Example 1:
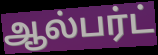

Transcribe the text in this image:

ஆல்பர்ட்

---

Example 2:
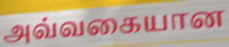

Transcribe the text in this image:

அவ்வகையான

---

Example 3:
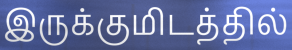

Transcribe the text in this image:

இருக்குமிடத்தில்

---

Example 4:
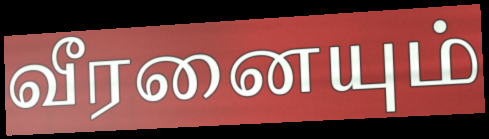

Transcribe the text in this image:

வீரனையும்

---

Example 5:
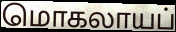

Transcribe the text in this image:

மொகலாயப்